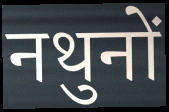
नथुनों